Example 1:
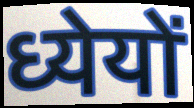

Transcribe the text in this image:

ध्येयों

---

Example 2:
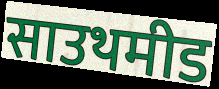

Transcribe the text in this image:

साउथमीड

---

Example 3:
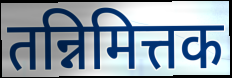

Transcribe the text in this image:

तन्निमित्तक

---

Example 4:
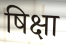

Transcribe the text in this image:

षिक्षा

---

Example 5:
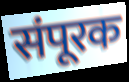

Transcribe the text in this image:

संपूरक